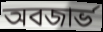
অবজার্ভ